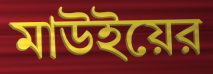
মাউইয়ের